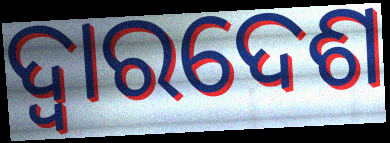
ଦ୍ୱାରଦେଶ